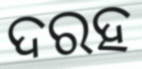
ଦରହ